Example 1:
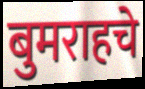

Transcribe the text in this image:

बुमराहचे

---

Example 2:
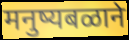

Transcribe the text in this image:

मनुष्यबळाने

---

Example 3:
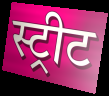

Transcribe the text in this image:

स्ट्रीट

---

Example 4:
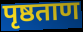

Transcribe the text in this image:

पृष्ठताण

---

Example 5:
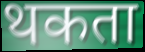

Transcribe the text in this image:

थकता